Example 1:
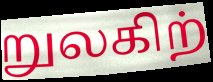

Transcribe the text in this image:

றுலகிற்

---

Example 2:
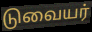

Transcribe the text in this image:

டுவையர்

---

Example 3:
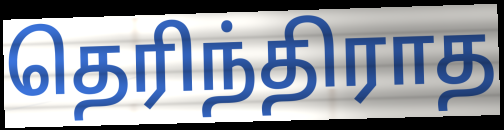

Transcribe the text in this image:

தெரிந்திராத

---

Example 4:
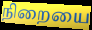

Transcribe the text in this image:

நிறையை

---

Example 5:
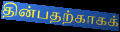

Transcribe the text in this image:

தின்பதற்காகக்